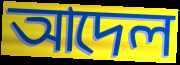
আদেল